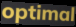
optimal